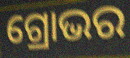
ଗ୍ରୋଭର